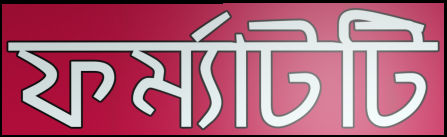
ফর্ম্যাটটি